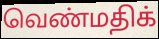
வெண்மதிக்